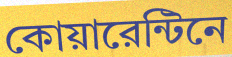
কোয়ারেন্টিনে